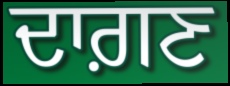
ਦਾਗ਼ਣ